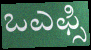
ಒಎಫ್ಸಿ